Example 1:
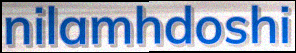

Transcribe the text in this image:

nilamhdoshi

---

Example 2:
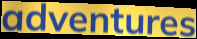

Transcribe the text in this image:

adventures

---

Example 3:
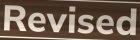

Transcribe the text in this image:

Revised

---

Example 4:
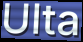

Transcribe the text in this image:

Ulta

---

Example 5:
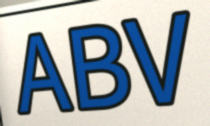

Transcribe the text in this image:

ABV